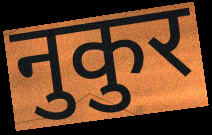
नुकुर